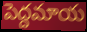
పెద్దమాయ